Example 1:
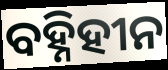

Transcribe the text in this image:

ବହ୍ନିହୀନ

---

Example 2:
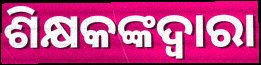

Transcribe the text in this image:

ଶିକ୍ଷକଙ୍କଦ୍ଵାରା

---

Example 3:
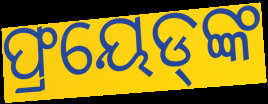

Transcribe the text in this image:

ଫ୍ରୟେଡ୍‍ଙ୍କ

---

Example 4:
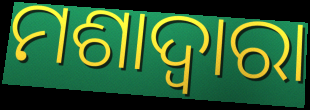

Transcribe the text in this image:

ମଶାଦ୍ୱାରା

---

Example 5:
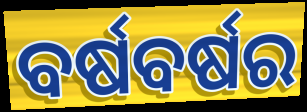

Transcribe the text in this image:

ବର୍ଷବର୍ଷର